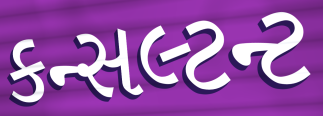
કન્સલ્ટન્ટ